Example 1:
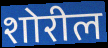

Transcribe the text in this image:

शोरील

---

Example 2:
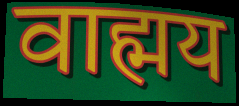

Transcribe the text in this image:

वाह्मय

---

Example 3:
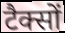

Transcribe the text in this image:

टैक्सों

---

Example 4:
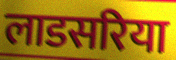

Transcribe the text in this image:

लाडसरिया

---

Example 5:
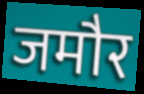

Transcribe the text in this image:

जमौर